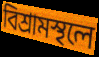
বিশ্রামস্থলে